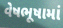
વેષભૂષામાં